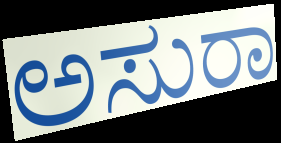
ಅಸುರಾ